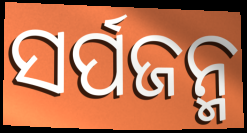
ସର୍ପଜନ୍ମ